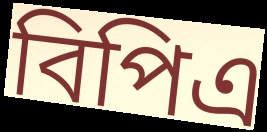
বিপিএ